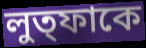
লুত্ফাকে